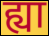
ह्या